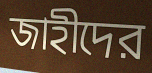
জাহীদের